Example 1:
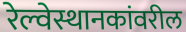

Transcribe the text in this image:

रेल्वेस्थानकांवरील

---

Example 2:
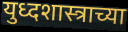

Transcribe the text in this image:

युध्दशास्त्राच्या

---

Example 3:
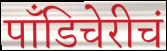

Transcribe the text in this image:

पाँडिचेरीचं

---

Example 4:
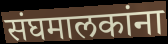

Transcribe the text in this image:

संघमालकांना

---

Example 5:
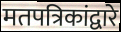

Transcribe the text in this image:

मतपत्रिकांद्वारे